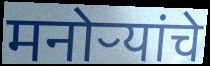
मनोऱ्यांचे